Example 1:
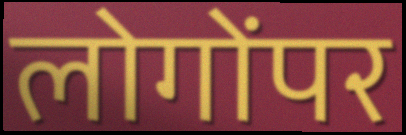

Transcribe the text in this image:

लोगोंपर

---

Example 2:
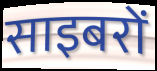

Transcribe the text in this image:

साइबरों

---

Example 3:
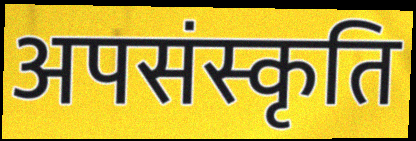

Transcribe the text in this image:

अपसंस्कृति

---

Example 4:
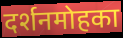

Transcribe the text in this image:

दर्शनमोहका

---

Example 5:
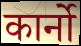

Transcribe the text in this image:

कार्नो